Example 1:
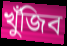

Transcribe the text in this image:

খুঁজিব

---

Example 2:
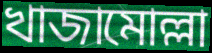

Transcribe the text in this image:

খাজামোল্লা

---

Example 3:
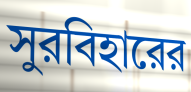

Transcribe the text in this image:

সুরবিহারের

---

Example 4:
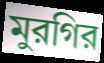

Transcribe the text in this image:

মুরগির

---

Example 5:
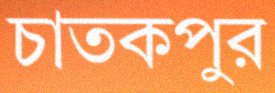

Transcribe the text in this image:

চাতকপুর